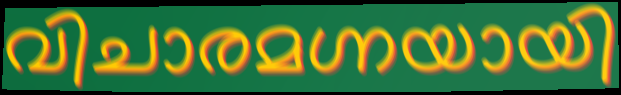
വിചാരമഗ്നയായി